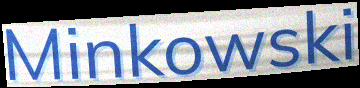
Minkowski